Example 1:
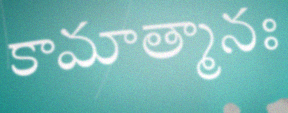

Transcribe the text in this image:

కామాత్మానః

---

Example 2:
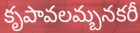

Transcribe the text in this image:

కృపావలమ్బనకరీ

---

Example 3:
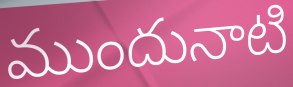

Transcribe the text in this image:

ముందునాటి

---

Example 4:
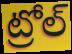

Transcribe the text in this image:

ట్రోల్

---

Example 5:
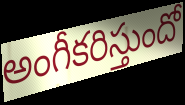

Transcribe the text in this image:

అంగీకరిస్తుందో